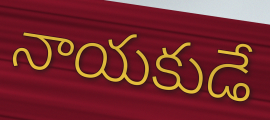
నాయకుడే